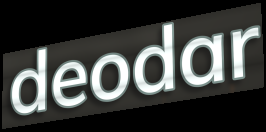
deodar